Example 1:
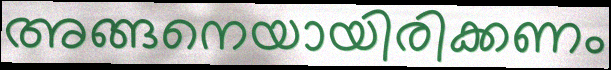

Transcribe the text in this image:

അങ്ങനെയായിരിക്കണം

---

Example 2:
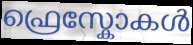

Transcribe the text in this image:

ഫ്രെസ്കോകൾ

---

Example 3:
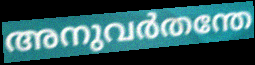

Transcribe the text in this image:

അനുവർതന്തേ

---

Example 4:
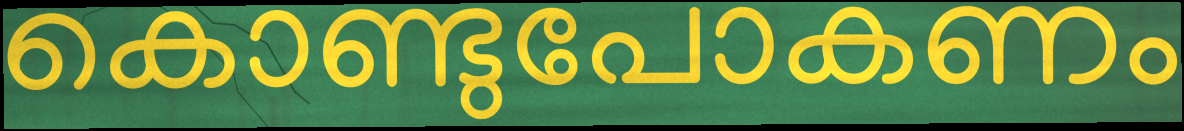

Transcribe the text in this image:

കൊണ്ടുപോകണം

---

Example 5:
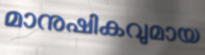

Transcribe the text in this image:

മാനുഷികവുമായ